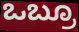
ಒಬ್ರೂ